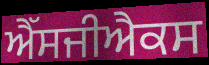
ਐੱਸਜੀਐਕਸ